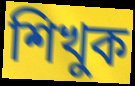
শিখুক